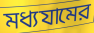
মধ্যযামের